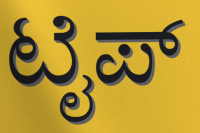
ಟೈಪ್